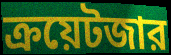
ক্রয়েটজার